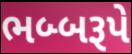
ભબ્બરૂપે